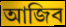
আজিব